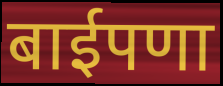
बाईपणा